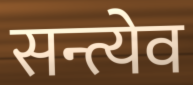
सन्त्येव